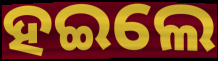
ହଇଲେ